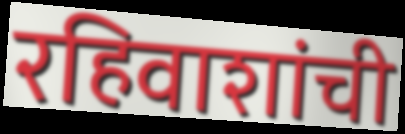
रहिवाशांची